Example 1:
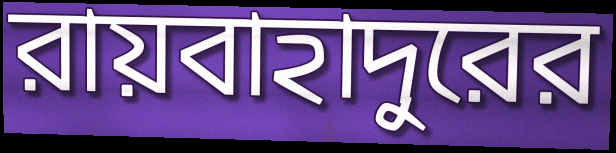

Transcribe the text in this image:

রায়বাহাদুরের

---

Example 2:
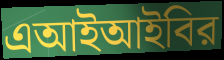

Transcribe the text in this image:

এআইআইবির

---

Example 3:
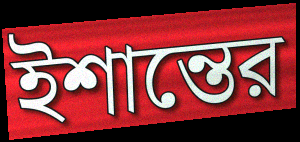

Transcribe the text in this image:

ইশান্তের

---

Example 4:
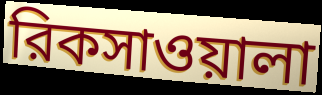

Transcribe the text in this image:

রিকসাওয়ালা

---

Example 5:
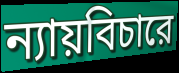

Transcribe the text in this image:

ন্যায়বিচারে